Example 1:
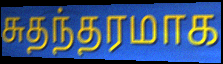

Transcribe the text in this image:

சுதந்தரமாக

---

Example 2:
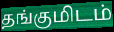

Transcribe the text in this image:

தங்குமிடம்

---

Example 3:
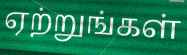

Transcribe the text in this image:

ஏற்றுங்கள்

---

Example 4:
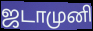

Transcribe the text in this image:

ஜடாமுனி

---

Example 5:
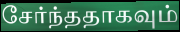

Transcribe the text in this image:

சேர்ந்ததாகவும்